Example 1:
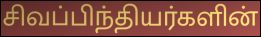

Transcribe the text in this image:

சிவப்பிந்தியர்களின்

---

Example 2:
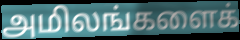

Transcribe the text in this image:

அமிலங்களைக்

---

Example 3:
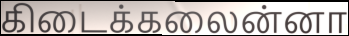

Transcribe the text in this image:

கிடைக்கலைன்னா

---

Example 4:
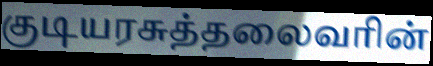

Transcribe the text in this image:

குடியரசுத்தலைவரின்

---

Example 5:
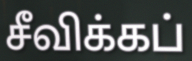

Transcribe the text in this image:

சீவிக்கப்